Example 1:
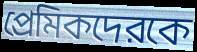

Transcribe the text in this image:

প্রেমিকদেরকে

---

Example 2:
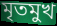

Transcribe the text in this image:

মৃতমুখ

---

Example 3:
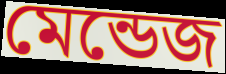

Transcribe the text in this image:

মেন্ডেজ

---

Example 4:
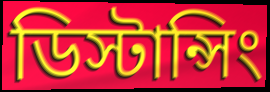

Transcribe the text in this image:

ডিস্টান্সিং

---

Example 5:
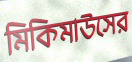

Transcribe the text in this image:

মিকিমাউসের